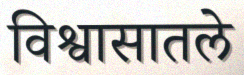
विश्वासातले